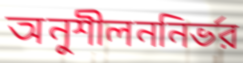
অনুশীলননির্ভর